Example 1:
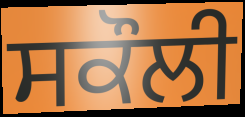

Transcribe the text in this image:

ਸਕੌਲੀ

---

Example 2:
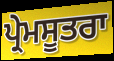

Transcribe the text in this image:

ਪ੍ਰੇਮਸੂਤਰਾ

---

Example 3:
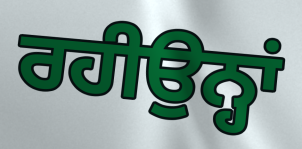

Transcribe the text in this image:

ਰਹੀਉਨ੍ਹਾਂ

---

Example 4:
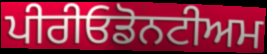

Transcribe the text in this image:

ਪੀਰੀਓਡੋਨਟੀਅਮ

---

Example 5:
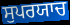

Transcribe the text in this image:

ਸੁਪਰਯਾਚ